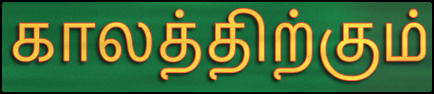
காலத்திற்கும்